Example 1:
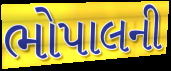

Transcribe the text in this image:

ભોપાલની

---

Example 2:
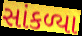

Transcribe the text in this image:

સાંકળ્યા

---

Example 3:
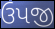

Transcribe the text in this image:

ઉપજી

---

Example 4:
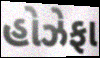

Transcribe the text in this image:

હોઝેફા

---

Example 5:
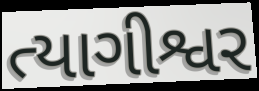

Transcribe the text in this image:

ત્યાગીશ્વર